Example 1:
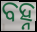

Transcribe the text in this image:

ବହ୍ନ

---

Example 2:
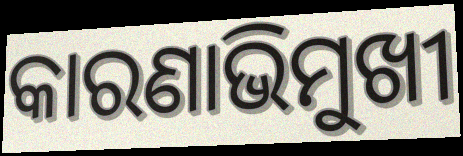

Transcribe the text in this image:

କାରଣାଭିମୁଖୀ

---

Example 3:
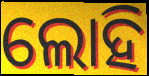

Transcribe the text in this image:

ଲୋହି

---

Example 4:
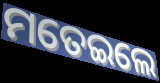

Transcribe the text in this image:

ମତେଇଲେ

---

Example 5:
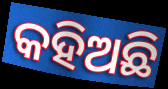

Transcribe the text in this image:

କହିଅଛି